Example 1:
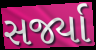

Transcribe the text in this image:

સર્જ્યા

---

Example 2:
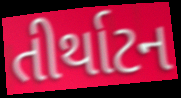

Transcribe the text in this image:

તીર્થાટન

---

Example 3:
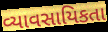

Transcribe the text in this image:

વ્યાવસાયિકતા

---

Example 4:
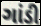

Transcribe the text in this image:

ગાંડી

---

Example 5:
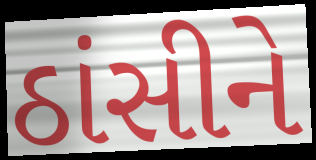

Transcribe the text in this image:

ઠાંસીને